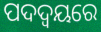
ପଦଦ୍ୱୟରେ